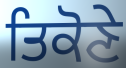
ਤਿਕੋਣੇ